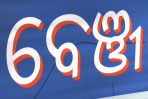
ବେଞ୍ଜ